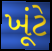
ખૂંટે